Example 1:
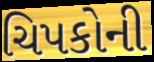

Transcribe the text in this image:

ચિપકોની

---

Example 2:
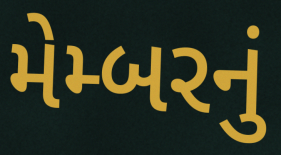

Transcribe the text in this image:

મેમ્બરનું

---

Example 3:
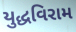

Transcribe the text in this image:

યુદ્ધવિરામ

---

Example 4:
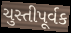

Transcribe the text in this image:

ચુસ્તીપૂર્વક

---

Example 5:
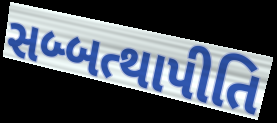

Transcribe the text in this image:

સબ્બત્થાપીતિ